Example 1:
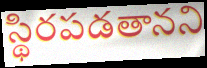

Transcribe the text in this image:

స్థిరపడతానని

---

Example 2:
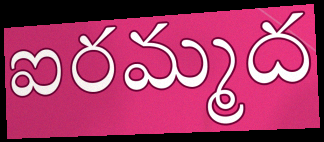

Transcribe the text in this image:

ఐరమ్మద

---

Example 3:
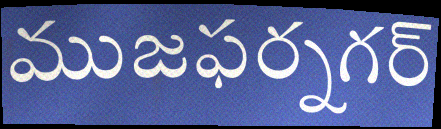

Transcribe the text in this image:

ముజఫర్నగర్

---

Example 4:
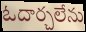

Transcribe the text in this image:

ఓదార్చలేను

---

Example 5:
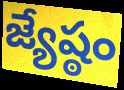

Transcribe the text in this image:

జ్యేష్ఠం